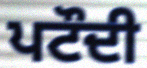
ਪਟੌਦੀ